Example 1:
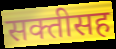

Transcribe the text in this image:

सक्तीसह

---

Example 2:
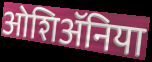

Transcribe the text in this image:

ओशिॲनिया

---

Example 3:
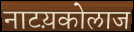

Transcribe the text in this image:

नाटय़कोलाज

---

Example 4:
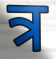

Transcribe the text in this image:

त्र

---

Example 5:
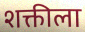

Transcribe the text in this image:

शक्तीला